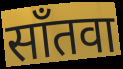
साँतवा